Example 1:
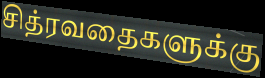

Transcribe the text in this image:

சித்ரவதைகளுக்கு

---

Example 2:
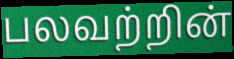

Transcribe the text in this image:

பலவற்றின்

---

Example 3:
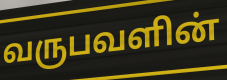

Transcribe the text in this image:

வருபவளின்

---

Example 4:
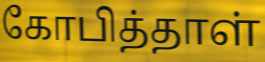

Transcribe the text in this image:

கோபித்தாள்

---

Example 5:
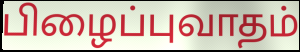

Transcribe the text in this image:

பிழைப்புவாதம்